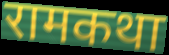
रामकथा